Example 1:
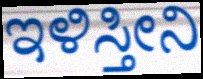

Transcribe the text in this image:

ಇಳಿಸ್ತೀನಿ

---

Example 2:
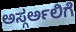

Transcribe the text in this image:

ಅಸ್ಗರ್ಅಲಿಗೆ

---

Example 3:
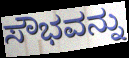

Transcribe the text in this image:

ಸೌಭವನ್ನು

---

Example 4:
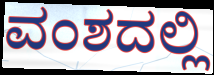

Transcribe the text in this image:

ವಂಶದಲ್ಲಿ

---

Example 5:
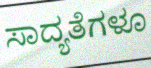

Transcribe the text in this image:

ಸಾದ್ಯತೆಗಳೂ